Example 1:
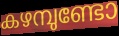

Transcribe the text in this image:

കഴമ്പുണ്ടോ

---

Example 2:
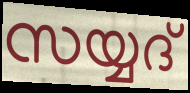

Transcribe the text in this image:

സയ്യദ്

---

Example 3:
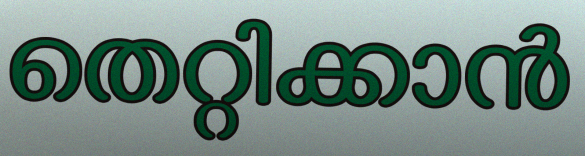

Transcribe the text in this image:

തെറ്റിക്കാൻ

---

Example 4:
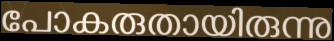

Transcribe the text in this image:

പോകരുതായിരുന്നു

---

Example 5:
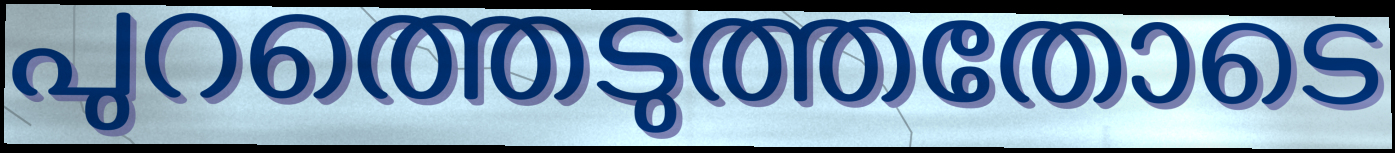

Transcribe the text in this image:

പുറത്തെടുത്തതോടെ